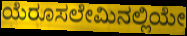
ಯೆರೂಸಲೇಮಿನಲ್ಲಿಯೇ